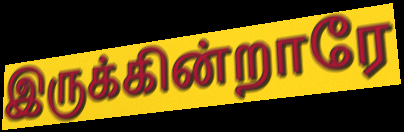
இருக்கின்றாரே